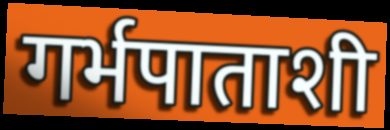
गर्भपाताशी